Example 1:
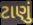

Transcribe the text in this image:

ટાણું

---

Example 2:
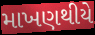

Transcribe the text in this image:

માખણથીયે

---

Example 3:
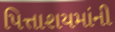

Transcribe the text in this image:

પિત્તાશયમાંની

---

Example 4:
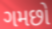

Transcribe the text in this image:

ગમછો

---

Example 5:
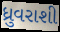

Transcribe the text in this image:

ધ્રુવરાશી